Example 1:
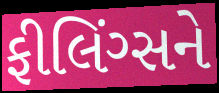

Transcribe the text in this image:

ફીલિંગ્સને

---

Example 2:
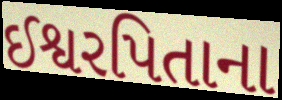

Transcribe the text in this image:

ઈશ્વરપિતાના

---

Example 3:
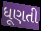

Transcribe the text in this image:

ધૂણતી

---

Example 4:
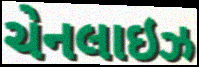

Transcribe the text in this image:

ચેનલાઇઝ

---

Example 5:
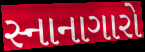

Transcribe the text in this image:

સ્નાનાગારો